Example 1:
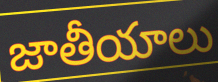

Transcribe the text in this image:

జాతీయాలు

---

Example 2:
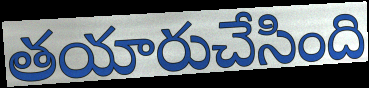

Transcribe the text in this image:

తయారుచేసింది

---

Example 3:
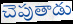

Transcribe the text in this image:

చెపుతాడు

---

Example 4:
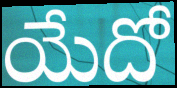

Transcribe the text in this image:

యేదో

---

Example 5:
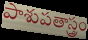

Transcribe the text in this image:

పాశుపతాస్త్రం